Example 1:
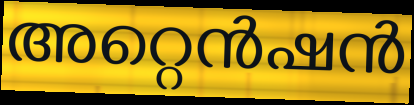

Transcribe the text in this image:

അറ്റെൻഷൻ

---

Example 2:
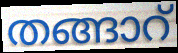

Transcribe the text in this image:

തങ്ങാറ്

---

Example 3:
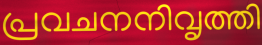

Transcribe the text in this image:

പ്രവചനനിവൃത്തി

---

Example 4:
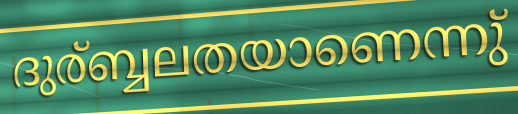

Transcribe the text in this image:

ദുര്ബ്ബലതയാണെന്നു്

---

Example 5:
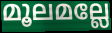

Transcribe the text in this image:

മൂലമല്ലേ